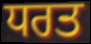
ਧਰਤ